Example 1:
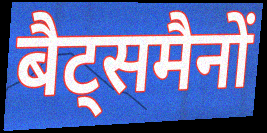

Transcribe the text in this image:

बैट्समैनों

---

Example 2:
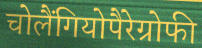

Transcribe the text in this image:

चोलैंगियोपैरेग्रोफी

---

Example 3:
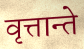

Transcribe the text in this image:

वृत्तान्ते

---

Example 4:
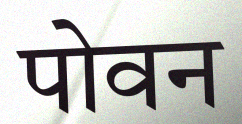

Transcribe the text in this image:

पोवन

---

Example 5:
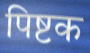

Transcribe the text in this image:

पिष्टक